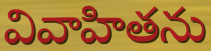
వివాహితను